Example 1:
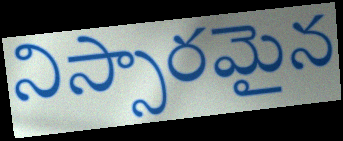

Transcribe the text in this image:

నిస్సారమైన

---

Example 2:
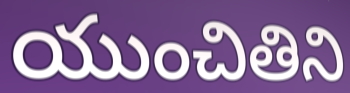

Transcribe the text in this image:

యుంచితిని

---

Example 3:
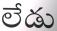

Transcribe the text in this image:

లేడు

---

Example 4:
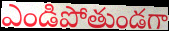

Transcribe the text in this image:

ఎండిపోతుండగా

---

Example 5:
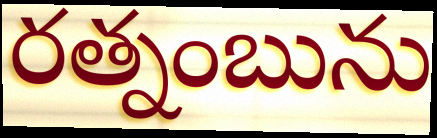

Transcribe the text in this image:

రత్నంబును